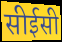
सीईसी